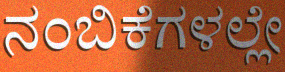
ನಂಬಿಕೆಗಳಲ್ಲೇ